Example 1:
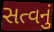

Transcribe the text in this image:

સત્વનું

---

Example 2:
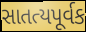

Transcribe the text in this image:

સાતત્યપૂર્વક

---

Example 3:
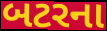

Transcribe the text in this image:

બટરના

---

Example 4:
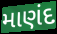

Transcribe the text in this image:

માણંદ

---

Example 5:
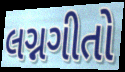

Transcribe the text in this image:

લગ્નગીતો